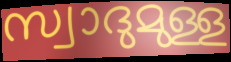
സ്വാദുമുള്ള